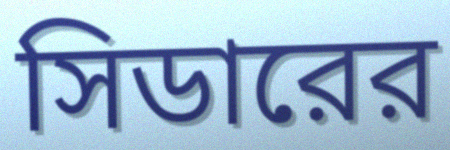
সিডারের